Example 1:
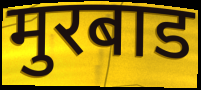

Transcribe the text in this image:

मुरबाड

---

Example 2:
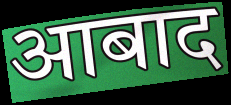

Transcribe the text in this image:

आबाद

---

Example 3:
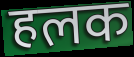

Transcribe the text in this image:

हलक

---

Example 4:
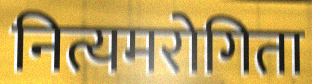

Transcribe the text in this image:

नित्यमरोगिता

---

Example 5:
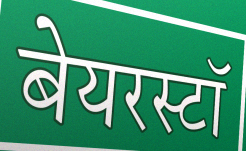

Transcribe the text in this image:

बेयरस्टॉ